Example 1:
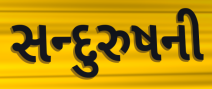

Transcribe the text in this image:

સન્દુરુષની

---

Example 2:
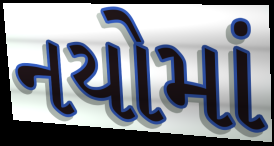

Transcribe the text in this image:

નયોમાં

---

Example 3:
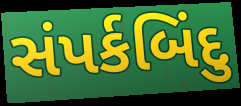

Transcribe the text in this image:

સંપર્કબિંદુ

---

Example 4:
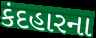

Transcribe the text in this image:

કંદહારના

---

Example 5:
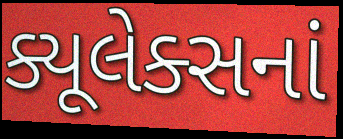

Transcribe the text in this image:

ક્યૂલેક્સનાં